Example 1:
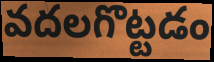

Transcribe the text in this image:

వదలగొట్టడం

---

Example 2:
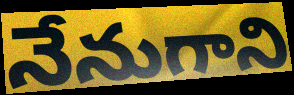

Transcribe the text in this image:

నేనుగాని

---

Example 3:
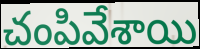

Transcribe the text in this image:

చంపివేశాయి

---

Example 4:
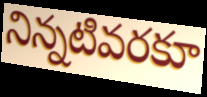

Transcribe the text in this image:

నిన్నటివరకూ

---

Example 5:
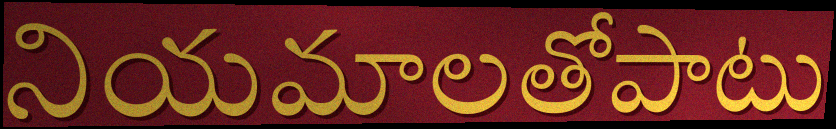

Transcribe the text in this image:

నియమాలతోపాటు